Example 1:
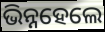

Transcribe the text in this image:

ଭିନ୍ନହେଲେ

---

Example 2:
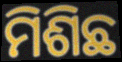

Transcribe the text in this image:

ମିଶିଛ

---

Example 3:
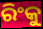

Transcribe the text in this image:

ରିଂକୁ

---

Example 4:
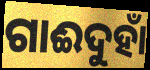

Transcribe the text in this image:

ଗାଈଦୁହାଁ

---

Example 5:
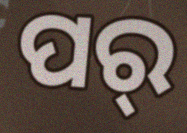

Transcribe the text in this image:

ପର୍